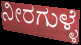
ನೀರಗುಳ್ಳೆ